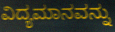
ವಿದ್ಯಮಾನವನ್ನು